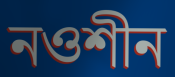
নওশীন